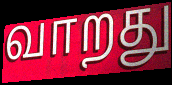
வாறது